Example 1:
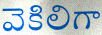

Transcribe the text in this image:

వెకిలిగా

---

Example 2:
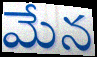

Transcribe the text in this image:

మేన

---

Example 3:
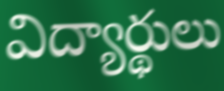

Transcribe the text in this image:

విద్యార్థులు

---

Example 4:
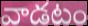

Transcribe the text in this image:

వాడటం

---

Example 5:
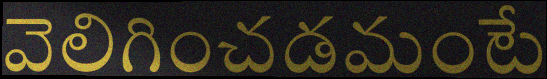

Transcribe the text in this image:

వెలిగించడమంటే